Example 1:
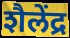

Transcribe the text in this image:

शैलेंद्र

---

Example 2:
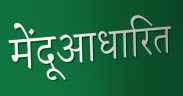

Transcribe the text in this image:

मेंदूआधारित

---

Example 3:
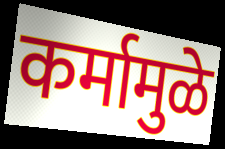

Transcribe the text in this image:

कर्मामुळे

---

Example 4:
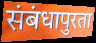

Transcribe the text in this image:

संबंधापुरता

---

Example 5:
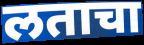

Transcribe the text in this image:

लताचा